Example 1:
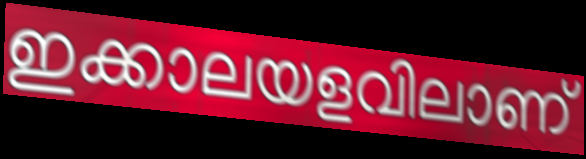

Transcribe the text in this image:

ഇക്കാലയളവിലാണ്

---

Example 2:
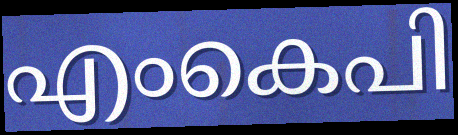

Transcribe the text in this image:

എംകെപി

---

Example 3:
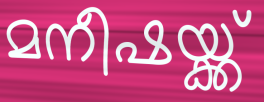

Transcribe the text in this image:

മനീഷയ്ക്ക്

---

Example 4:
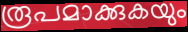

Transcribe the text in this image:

രൂപമാക്കുകയും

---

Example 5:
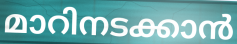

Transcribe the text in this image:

മാറിനടക്കാൻ